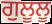
ਗੁਲੂਲੂ